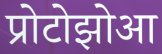
प्रोटोझोआ